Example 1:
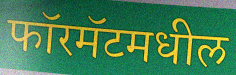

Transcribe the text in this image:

फॉरमॅटमधील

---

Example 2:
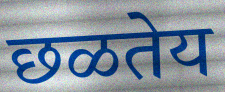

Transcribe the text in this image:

छळतेय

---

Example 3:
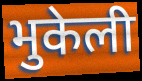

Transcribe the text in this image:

भुकेली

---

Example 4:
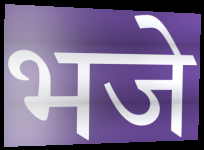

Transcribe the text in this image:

भजे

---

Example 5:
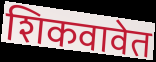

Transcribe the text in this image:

शिकवावेत